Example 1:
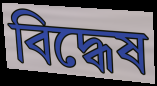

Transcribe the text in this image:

বিদ্ধেষ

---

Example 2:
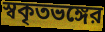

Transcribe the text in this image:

স্বকৃতভঙ্গের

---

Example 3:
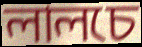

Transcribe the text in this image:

লালচে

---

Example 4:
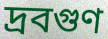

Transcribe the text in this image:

দ্রবগুণ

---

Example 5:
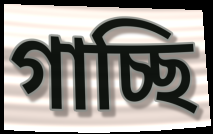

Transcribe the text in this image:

গাচ্ছি